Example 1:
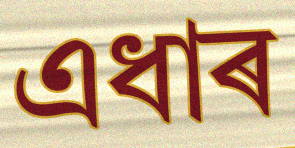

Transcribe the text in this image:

এধাৰ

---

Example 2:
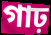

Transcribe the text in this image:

গাঢ়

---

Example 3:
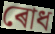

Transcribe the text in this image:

ৰোধ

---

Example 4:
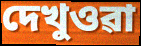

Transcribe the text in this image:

দেখুওৱা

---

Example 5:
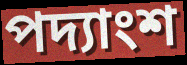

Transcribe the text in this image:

পদ্যাংশ